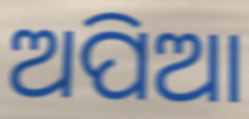
ଅପିଆ